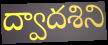
ద్వాదశిని